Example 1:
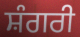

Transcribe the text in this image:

ਸ਼ੰਗਰੀ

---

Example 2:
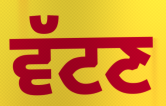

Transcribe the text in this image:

ਵੱਟਣ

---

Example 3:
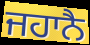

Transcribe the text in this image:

ਜਹਾਨੈ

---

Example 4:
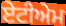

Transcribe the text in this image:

ਏਟੀਅੇਮ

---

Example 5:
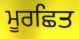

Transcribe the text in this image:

ਮੂਰਛਿਤ